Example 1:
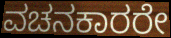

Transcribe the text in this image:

ವಚನಕಾರರೇ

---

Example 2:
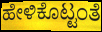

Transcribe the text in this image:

ಹೇಳಿಕೊಟ್ಟಂತೆ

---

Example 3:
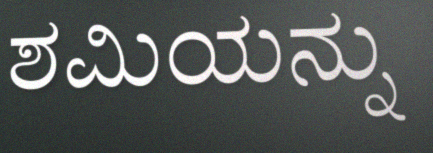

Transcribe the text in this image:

ಶಮಿಯನ್ನು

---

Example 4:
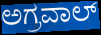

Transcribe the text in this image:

ಅಗ್ರವಾಲ್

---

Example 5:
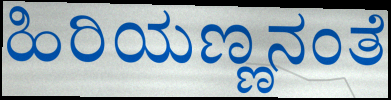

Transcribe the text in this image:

ಹಿರಿಯಣ್ಣನಂತೆ